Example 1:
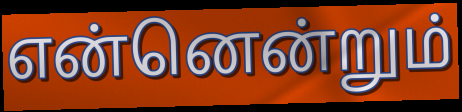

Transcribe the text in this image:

என்னென்றும்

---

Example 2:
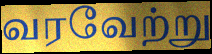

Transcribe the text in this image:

வரவேற்று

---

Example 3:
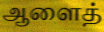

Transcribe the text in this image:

ஆளைத்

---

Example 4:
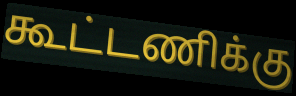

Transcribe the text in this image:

கூட்டணிக்கு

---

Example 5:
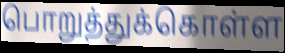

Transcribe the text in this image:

பொறுத்துக்கொள்ள